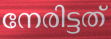
നേരിട്ടത്